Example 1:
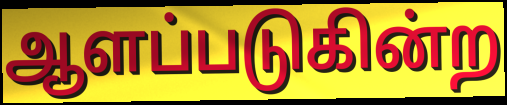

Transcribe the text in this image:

ஆளப்படுகின்ற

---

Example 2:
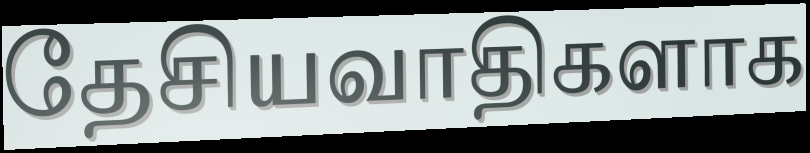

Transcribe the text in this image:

தேசியவாதிகளாக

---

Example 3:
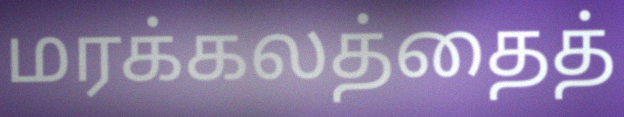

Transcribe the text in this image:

மரக்கலத்தைத்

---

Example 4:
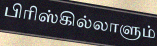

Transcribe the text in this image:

பிரிஸ்கில்லாளும்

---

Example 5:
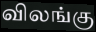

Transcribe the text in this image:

விலங்கு